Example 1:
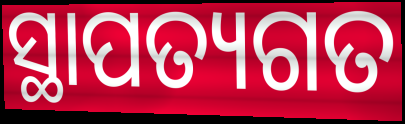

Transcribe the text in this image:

ସ୍ଥାପତ୍ୟଗତ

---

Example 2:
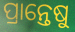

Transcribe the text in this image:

ପ୍ରାନ୍ତେଷୁ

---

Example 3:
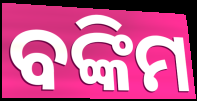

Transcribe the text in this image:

ବଙ୍କିମ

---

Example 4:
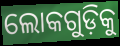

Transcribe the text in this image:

ଲୋକଗୁଡ଼ିକୁ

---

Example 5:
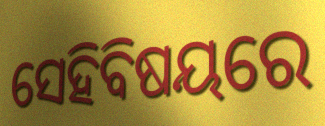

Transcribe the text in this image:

ସେହିବିଷୟରେ